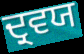
ਦ੍ਰਵਯ